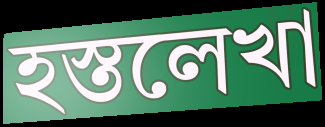
হস্তলেখা